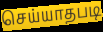
செய்யாதபடி